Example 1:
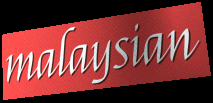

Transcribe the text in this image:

malaysian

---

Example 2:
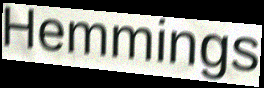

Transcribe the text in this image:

Hemmings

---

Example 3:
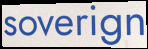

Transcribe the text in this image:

soverign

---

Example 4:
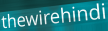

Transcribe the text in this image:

thewirehindi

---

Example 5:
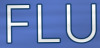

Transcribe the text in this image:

FLU